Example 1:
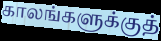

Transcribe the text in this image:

காலங்களுக்குத்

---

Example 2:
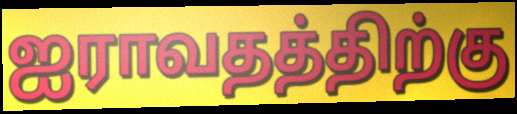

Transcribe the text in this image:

ஐராவதத்திற்கு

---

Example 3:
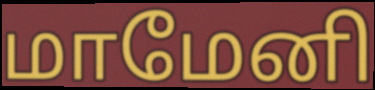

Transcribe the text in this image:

மாமேனி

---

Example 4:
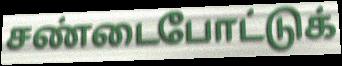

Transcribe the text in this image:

சண்டைபோட்டுக்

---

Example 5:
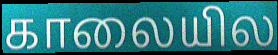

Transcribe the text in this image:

காலையில